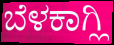
ಬೆಳಕಾಗ್ಲಿ